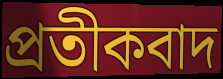
প্ৰতীকবাদ